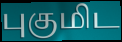
புகுமிட